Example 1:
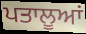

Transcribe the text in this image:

ਪਤਾਲੂਆਂ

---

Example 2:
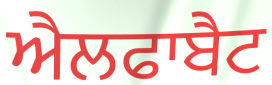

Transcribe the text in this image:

ਐਲਫਾਬੈਟ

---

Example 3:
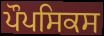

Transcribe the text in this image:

ਪੌਪਸਿਕਸ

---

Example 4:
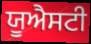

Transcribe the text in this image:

ਯੂਐਸਟੀ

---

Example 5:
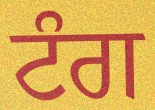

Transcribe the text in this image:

ਟੰਗ